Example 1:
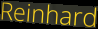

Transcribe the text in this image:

Reinhard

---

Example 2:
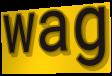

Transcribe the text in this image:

wag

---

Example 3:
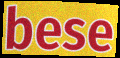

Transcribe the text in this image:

bese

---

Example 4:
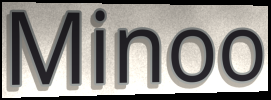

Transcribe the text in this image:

Minoo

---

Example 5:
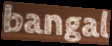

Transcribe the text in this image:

bangal